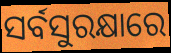
ସର୍ବସୁରକ୍ଷାରେ